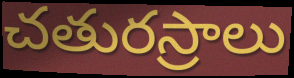
చతురస్రాలు